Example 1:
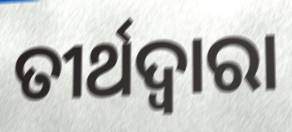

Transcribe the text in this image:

ତୀର୍ଥଦ୍ବାରା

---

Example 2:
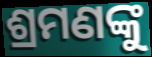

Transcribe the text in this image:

ଶ୍ରମଣଙ୍କୁ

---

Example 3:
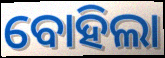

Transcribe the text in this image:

ବୋହିଲା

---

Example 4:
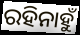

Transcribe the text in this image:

ରହିନାହୁଁ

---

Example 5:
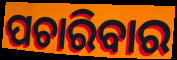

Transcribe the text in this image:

ପଚାରିବାର